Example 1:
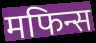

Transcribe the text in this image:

मफिन्स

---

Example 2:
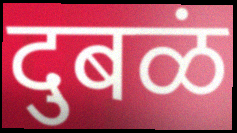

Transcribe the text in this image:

दुबळं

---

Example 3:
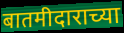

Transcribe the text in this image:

बातमीदाराच्या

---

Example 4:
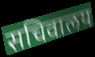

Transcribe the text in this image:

सचिवालय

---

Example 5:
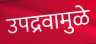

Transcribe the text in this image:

उपद्रवामुळे